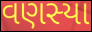
વણસ્યા